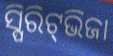
ସ୍ପିରିଟ୍‌ଭିଜା